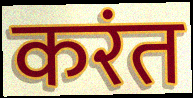
करंत